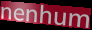
nenhum